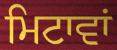
ਮਿਟਾਵਾਂ